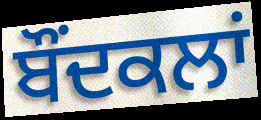
ਬੌਂਦਕਲਾਂ